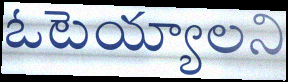
ఓటెయ్యాలని